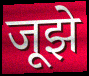
जूझे